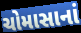
ચોમાસાનાં